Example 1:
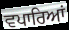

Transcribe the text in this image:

ਵਪਾਰਿਆਂ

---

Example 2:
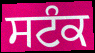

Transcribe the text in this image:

ਸਟੰਕ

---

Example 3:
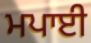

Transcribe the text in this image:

ਮਪਾਈ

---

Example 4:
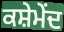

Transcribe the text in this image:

ਕਸ਼ੇਮੇਂਦ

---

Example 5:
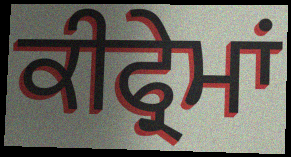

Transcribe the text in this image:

ਕੀਫ੍ਰੇਮਾਂ